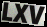
LXV